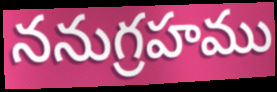
ననుగ్రహము